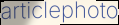
articlephoto